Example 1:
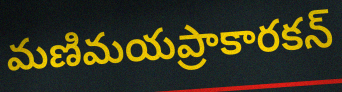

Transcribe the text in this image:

మణిమయప్రాకారకన్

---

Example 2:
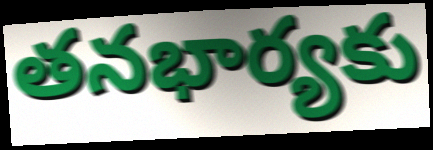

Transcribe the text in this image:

తనభార్యకు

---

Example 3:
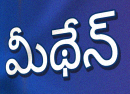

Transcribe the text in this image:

మీథేన్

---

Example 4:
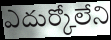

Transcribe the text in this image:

ఎదుర్కోలేని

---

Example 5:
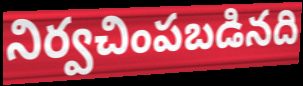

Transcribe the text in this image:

నిర్వచింపబడినది